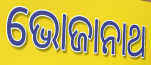
ଭୋଜାନାଥ